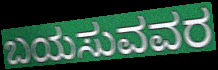
ಬಯಸುವವರ